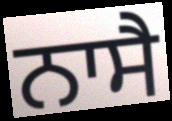
ਨਾਸੈ